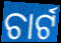
ଚାର୍ଟ